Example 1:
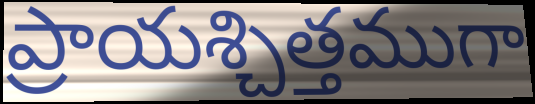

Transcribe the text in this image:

ప్రాయశ్చిత్తముగా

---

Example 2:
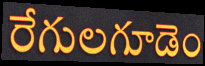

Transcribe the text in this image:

రేగులగూడెం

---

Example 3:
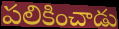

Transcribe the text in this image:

పలికించాడు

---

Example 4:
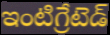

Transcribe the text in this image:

ఇంటిగ్రేటెడ్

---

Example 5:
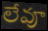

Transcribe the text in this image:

లేవూ